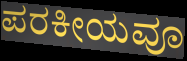
ಪರಕೀಯವೂ